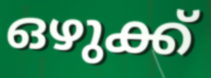
ഒഴുക്ക്